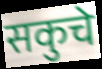
सकुचे